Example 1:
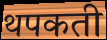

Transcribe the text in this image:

थपकती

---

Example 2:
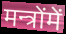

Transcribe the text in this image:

मन्त्रोंमें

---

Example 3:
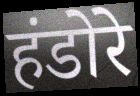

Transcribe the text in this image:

हंडोरे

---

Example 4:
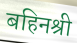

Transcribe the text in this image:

बहिनश्री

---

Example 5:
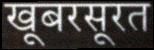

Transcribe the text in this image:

खूबरसूरत